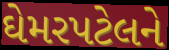
ઘેમરપટેલને